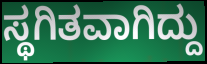
ಸ್ಥಗಿತವಾಗಿದ್ದು